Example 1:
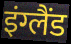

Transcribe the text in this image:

इंग्‍लैंड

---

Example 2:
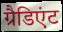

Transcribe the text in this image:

ग्रैडिएंट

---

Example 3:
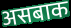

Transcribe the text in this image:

असबाक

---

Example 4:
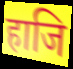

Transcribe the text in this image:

हाजि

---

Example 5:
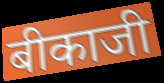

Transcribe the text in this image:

बीकाजी